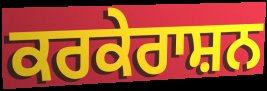
ਕਰਕੇਰਾਸ਼ਨ